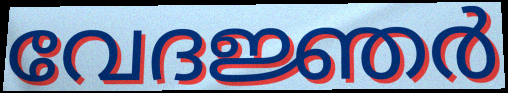
വേദജ്ഞർ